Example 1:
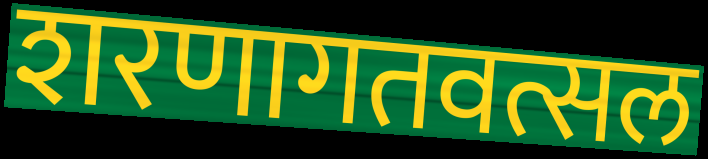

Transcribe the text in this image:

शरणागतवत्सल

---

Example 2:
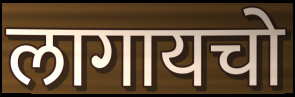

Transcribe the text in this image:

लागायचो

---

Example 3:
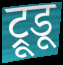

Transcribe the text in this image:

ट्रूडू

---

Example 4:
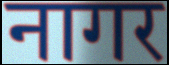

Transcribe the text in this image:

नागर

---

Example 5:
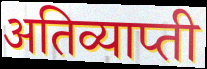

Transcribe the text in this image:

अतिव्याप्ती